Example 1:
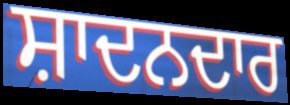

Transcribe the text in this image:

ਸ਼ਾਦਨਦਾਰ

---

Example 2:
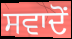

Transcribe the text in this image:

ਸਵਾਦੋਂ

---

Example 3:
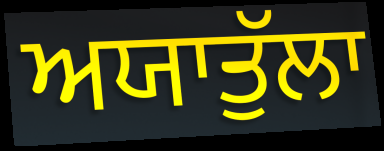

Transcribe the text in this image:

ਅਯਾਤੁੱਲਾ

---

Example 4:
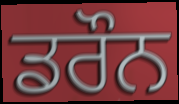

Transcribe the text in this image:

ਡਰੌਨ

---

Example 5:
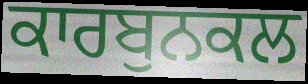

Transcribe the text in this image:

ਕਾਰਬੁਨਕਲ